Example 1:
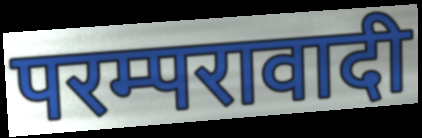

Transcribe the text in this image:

परम्परावादी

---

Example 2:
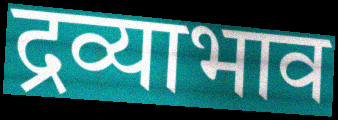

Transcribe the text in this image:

द्रव्याभाव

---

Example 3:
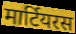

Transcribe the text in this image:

मार्टियरस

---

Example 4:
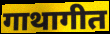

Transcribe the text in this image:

गाथागीत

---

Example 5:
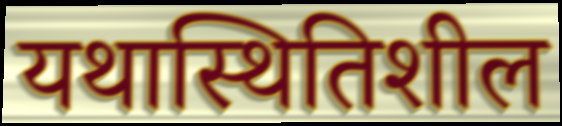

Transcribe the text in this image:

यथास्थितिशील